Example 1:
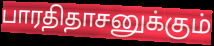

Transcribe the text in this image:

பாரதிதாசனுக்கும்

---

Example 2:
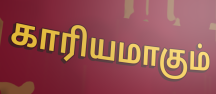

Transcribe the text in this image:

காரியமாகும்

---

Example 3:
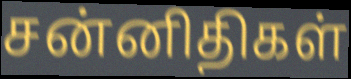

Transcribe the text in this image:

சன்னிதிகள்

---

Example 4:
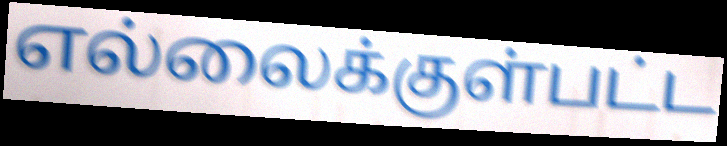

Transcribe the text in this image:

எல்லைக்குள்பட்ட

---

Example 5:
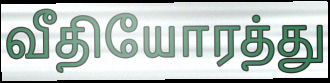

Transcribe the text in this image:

வீதியோரத்து